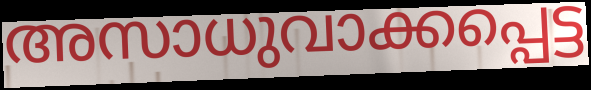
അസാധുവാക്കപ്പെട്ട